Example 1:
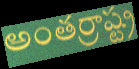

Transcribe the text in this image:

అంతర్రాష్ట్ర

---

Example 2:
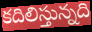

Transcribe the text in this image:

కదిలిస్తున్నది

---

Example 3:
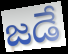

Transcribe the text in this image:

జడే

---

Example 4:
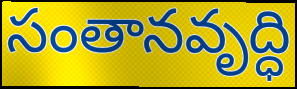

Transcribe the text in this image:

సంతానవృద్ధి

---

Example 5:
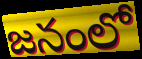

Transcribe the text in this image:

జనంలో